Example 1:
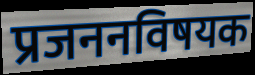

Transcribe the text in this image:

प्रजननविषयक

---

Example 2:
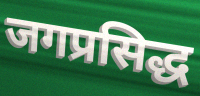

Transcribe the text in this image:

जगप्रसिद्ध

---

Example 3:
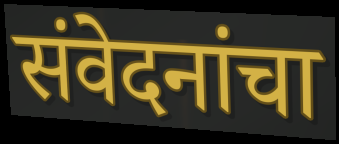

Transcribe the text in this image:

संवेदनांचा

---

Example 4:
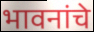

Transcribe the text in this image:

भावनांचे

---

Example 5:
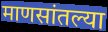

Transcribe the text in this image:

माणसांतल्या